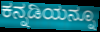
ಕನ್ನಡಿಯನ್ನೂ